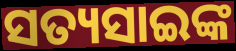
ସତ୍ୟସାଇଙ୍କ